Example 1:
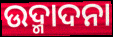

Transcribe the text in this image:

ଉଦ୍ମାଦନା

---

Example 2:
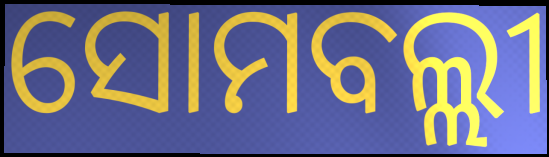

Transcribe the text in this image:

ସୋମବଲ୍ଲୀ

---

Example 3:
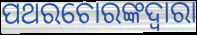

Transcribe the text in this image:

ପଥରଚୋରଙ୍କଦ୍ୱାରା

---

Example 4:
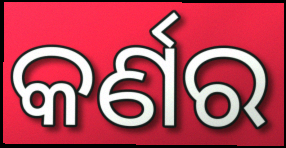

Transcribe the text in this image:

କର୍ଣର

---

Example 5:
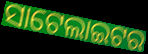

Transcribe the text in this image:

ସାଟେଲାଇଟର